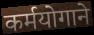
कर्मयोगाने